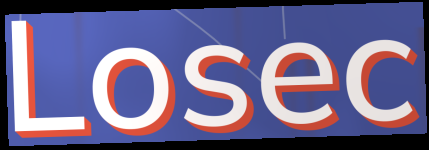
Losec